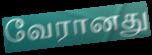
வேரானது